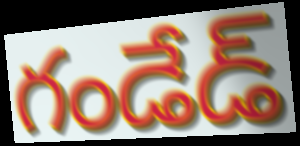
గండేడ్